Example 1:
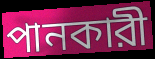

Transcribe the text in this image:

পানকারী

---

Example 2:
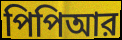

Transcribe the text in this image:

পিপিআর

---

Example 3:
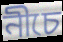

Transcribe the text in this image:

নীচে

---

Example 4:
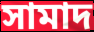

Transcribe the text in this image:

সামাদ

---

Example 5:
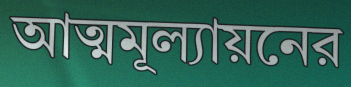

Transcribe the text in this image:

আত্মমূল্যায়নের